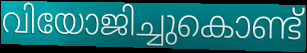
വിയോജിച്ചുകൊണ്ട്